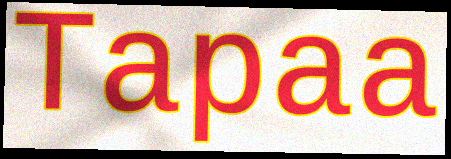
Tapaa